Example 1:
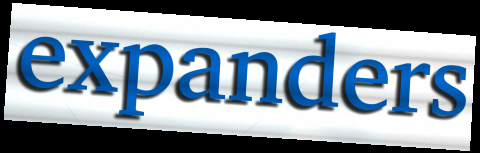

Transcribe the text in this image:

expanders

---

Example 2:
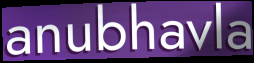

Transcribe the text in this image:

anubhavla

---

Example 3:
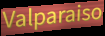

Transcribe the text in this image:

Valparaiso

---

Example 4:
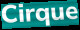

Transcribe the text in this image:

Cirque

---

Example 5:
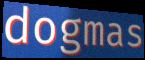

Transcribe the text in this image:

dogmas